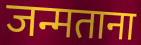
जन्मताना